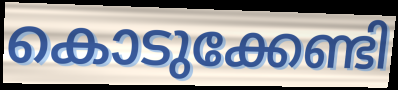
കൊടുക്കേണ്ടി